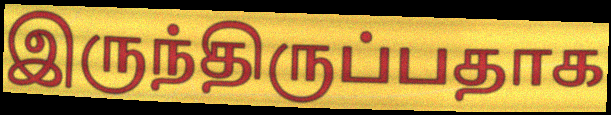
இருந்திருப்பதாக